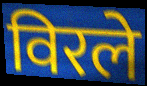
विरले